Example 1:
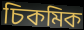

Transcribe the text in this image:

চিকমিক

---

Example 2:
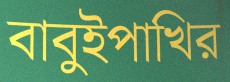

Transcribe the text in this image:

বাবুইপাখির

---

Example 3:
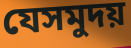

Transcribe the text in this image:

যেসমুদয়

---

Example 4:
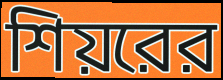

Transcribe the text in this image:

শিয়রের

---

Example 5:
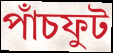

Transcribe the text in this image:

পাঁচফুট